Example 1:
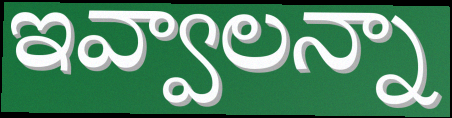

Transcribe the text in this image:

ఇవ్వాలన్నా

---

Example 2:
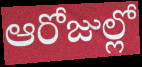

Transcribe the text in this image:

ఆరోజుల్లో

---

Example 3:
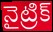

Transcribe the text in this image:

నైట్రిక్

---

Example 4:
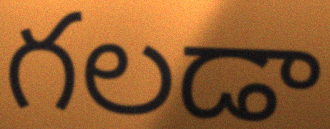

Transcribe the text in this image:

గలడా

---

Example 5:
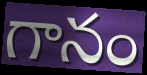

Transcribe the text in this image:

గానం